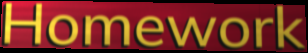
Homework